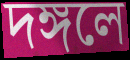
দঙ্গলে